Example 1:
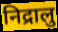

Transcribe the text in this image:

निद्रालु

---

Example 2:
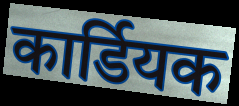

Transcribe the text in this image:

कार्डियक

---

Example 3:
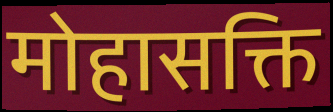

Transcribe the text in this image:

मोहासक्ति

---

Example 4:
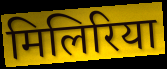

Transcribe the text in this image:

मिलिरिया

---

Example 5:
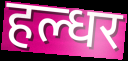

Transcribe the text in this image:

हल्धर